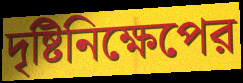
দৃষ্টিনিক্ষেপের